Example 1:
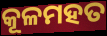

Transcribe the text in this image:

କୂଳମହତ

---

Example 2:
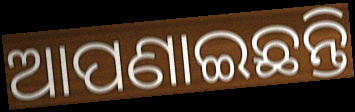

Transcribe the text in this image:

ଆପଣାଇଛନ୍ତି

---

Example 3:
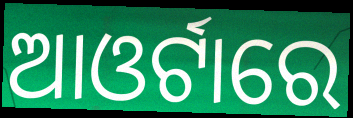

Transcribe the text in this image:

ଆଓର୍ଟାରେ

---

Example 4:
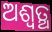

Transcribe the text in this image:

ଅଶ୍ବତ୍ଥ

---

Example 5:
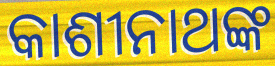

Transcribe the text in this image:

କାଶୀନାଥଙ୍କ